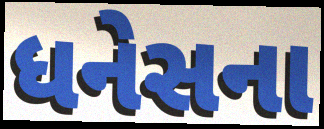
ધનેસના